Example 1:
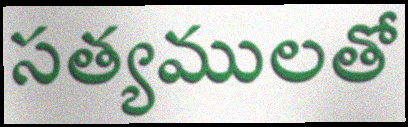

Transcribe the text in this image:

సత్యములతో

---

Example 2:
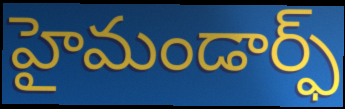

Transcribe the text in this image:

హైమండార్ఫ్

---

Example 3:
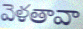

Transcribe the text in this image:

వెళతావా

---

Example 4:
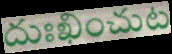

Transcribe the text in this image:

దుఃఖించుట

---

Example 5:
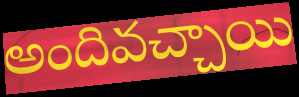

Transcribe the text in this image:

అందివచ్చాయి